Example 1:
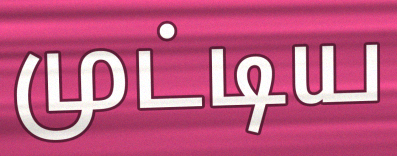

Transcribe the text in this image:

முட்டிய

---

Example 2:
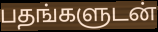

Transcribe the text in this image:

பதங்களுடன்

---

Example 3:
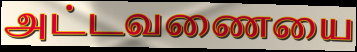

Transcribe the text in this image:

அட்டவணையை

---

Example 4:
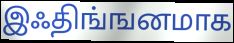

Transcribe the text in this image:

இஃதிங்ஙனமாக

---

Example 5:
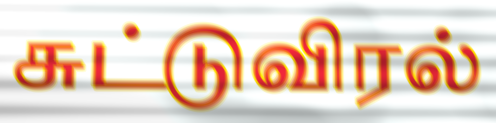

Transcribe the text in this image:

சுட்டுவிரல்